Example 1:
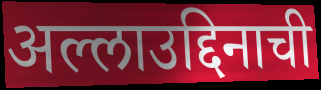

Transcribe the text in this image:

अल्लाउद्दिनाची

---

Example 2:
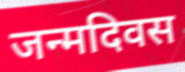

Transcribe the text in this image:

जन्मदिवस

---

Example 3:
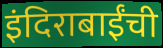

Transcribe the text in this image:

इंदिराबाईंची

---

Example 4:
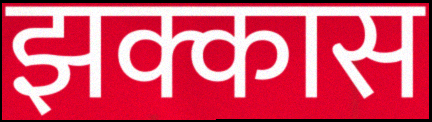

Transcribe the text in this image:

झक्कास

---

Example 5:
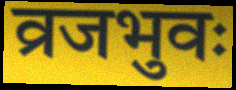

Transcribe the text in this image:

व्रजभुवः